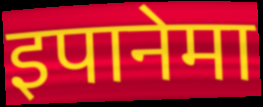
इपानेमा